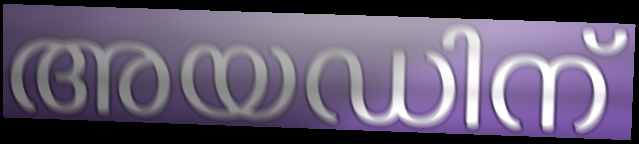
അയഡിന്